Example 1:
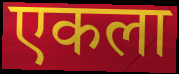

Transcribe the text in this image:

एकला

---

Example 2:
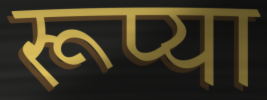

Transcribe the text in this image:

रूप्या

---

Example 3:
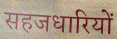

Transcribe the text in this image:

सहजधारियों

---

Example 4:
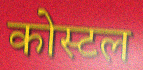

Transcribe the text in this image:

कोस्टल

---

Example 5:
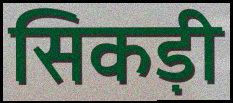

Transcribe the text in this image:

सिकड़ी